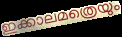
ഇക്കാലമത്രെയും